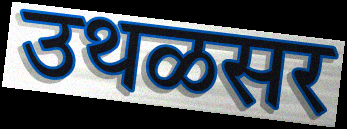
उथळसर